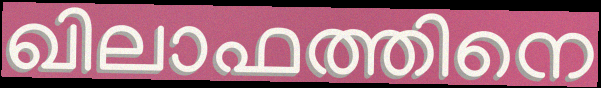
ഖിലാഫത്തിനെ